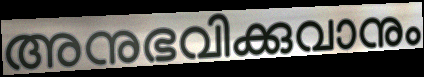
അനുഭവിക്കുവാനും